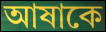
আষাকে